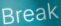
Break